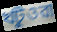
খটুওৱা